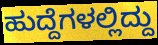
ಹುದ್ದೆಗಳಲ್ಲಿದ್ದು